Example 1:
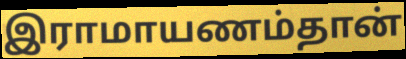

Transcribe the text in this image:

இராமாயணம்தான்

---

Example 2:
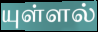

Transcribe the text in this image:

யுள்ளல்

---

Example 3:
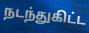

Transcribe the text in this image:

நடந்துகிட்ட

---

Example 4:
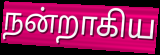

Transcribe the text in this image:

நன்றாகிய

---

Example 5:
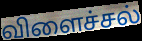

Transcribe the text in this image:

விளைச்சல்